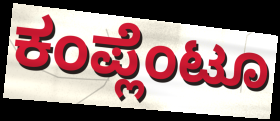
ಕಂಪ್ಲೆಂಟೂ